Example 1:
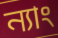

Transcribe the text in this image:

ন্যাং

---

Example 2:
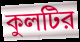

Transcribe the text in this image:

কুলটির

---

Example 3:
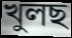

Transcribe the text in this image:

খুলছ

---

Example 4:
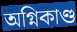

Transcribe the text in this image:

অগ্নিকাণ্ড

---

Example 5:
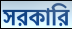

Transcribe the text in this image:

সরকারি